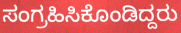
ಸಂಗ್ರಹಿಸಿಕೊಂಡಿದ್ದರು